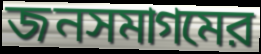
জনসমাগমের